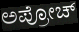
ಅಪ್ರೋಚ್